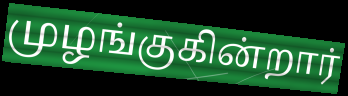
முழங்குகின்றார்